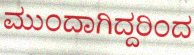
ಮುಂದಾಗಿದ್ದರಿಂದ